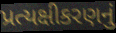
પ્રત્યક્ષીકરણનું